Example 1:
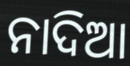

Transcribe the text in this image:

ନାଦିଆ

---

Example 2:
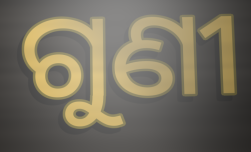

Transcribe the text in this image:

ଗୁଣୀ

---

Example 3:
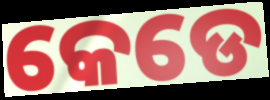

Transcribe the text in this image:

କେଡେ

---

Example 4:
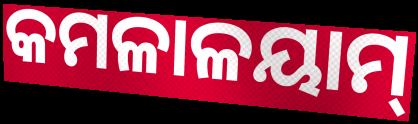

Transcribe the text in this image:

କମଳାଳୟାମ୍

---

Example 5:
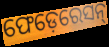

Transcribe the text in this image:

ଫେଡ଼େରେସନ୍